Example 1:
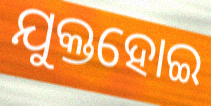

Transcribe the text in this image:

ଯୁକ୍ତହୋଇ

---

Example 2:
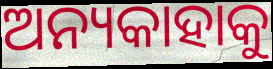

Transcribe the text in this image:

ଅନ୍ୟକାହାକୁ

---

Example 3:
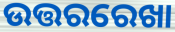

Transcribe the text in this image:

ଉତ୍ତରରେଖା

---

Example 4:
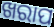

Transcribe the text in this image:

ଖରାପ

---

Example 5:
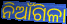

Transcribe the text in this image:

ନିଆଁଗିଳା